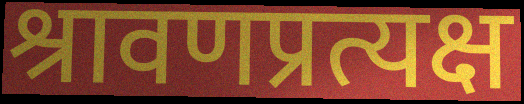
श्रावणप्रत्यक्ष